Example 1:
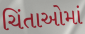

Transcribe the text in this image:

ચિંતાઓમાં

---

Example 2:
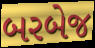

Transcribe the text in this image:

બરબેજ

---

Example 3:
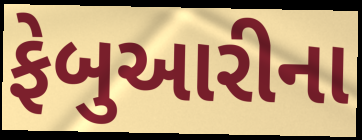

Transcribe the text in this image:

ફેબુઆરીના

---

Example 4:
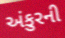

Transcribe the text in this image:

અંકુરની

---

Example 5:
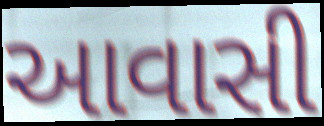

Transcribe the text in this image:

આવાસી